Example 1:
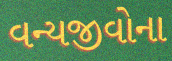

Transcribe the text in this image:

વન્યજીવોના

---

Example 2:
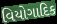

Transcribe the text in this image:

વિયોગાદિક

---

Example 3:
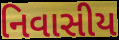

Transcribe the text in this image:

નિવાસીય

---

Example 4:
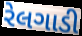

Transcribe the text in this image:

રેલગાડી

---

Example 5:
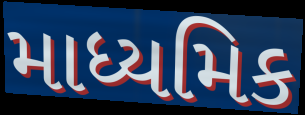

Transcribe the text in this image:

માધ્યમિક